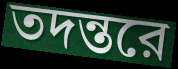
তদন্তরে